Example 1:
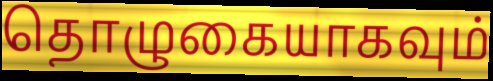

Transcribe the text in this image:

தொழுகையாகவும்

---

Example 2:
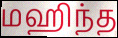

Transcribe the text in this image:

மஹிந்த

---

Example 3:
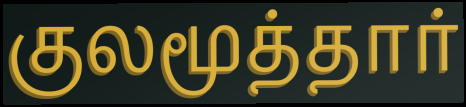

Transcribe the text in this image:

குலமூத்தார்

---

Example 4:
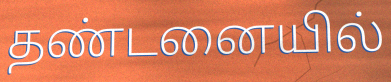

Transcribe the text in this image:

தண்டனையில்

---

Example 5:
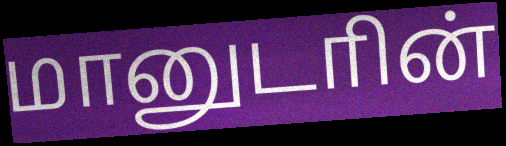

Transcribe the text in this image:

மானுடரின்